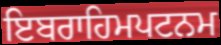
ਇਬਰਾਹਿਮਪਟਨਮ